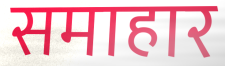
समाहार